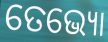
ତେଭ୍ୟୋ